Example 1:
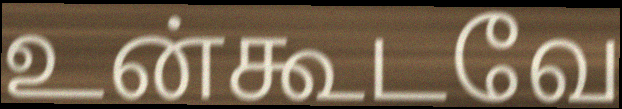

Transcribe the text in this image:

உன்கூடவே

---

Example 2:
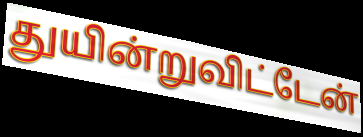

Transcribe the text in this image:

துயின்றுவிட்டேன்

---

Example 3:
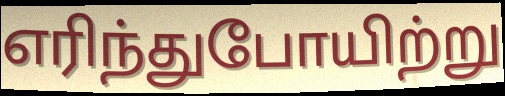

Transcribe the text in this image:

எரிந்துபோயிற்று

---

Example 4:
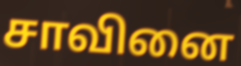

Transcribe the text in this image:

சாவினை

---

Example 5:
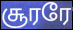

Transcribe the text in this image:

சூரரே